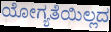
ಯೋಗ್ಯತೆಯಿಲ್ಲದ